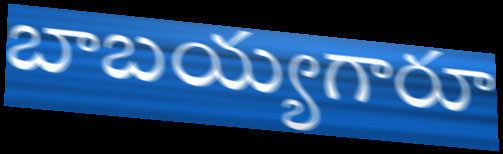
బాబయ్యగారూ